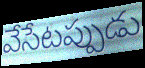
వేసేటప్పుడు